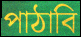
পাঠাবি